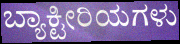
ಬ್ಯಾಕ್ಟೀರಿಯಗಳು